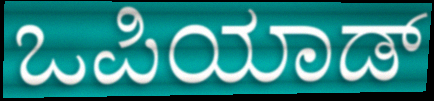
ಒಪಿಯಾಡ್